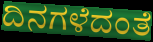
ದಿನಗಳೆದಂತೆ